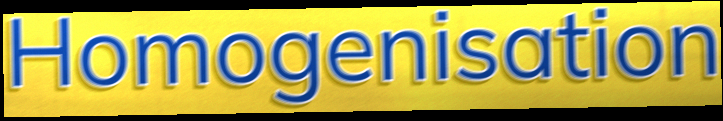
Homogenisation